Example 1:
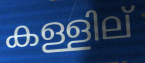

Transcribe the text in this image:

കള്ളില്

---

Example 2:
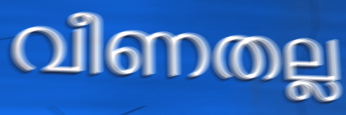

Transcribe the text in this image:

വീണതല്ല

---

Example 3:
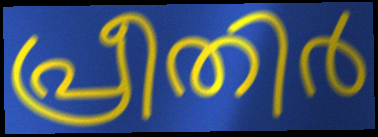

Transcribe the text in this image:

പ്രീതിർ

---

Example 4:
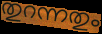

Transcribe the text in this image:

തുറന്നതും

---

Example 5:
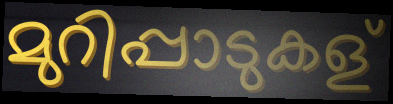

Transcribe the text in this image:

മുറിപ്പാടുകള്